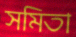
সমিতা